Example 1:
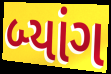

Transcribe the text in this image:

બ્યાંગ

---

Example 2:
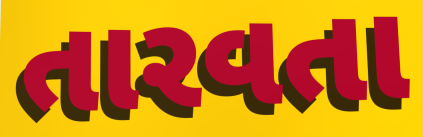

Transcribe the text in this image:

તારવતા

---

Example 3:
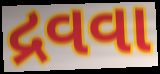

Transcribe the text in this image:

દ્રવવા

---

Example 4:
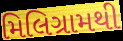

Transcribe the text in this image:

મિલિગ્રામથી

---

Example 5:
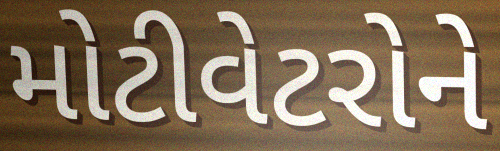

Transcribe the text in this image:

મોટીવેટરોને